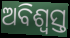
ଅବିଶ୍ୱସ୍ତ